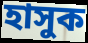
হাসুক